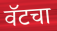
वॅटचा